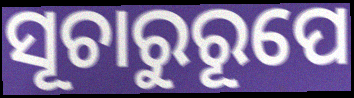
ସୂଚାରୁରୂପେ